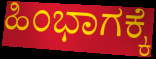
ಹಿಂಭಾಗಕ್ಕೆ